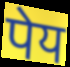
पेय